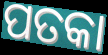
ପତକା